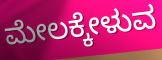
ಮೇಲಕ್ಕೇಳುವ